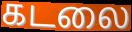
கடலை